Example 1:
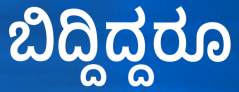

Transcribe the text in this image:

ಬಿದ್ದಿದ್ದರೂ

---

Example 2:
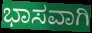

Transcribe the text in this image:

ಭಾಸವಾಗಿ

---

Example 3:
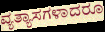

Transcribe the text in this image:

ವ್ಯತ್ಯಾಸಗಳಾದರೂ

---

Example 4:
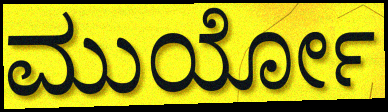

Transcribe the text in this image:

ಮುರ್ಯೋ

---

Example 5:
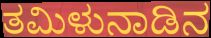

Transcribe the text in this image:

ತಮಿಳುನಾಡಿನ